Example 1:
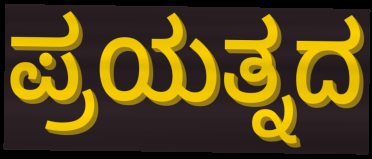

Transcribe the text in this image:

ಪ್ರಯತ್ನದ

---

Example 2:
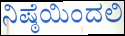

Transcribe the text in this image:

ನಿಷ್ಠೆಯಿಂದಲಿ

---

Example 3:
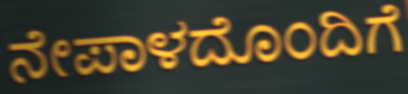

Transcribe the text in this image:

ನೇಪಾಳದೊಂದಿಗೆ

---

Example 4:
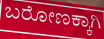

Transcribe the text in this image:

ಬರೋಣಕ್ಕಾಗಿ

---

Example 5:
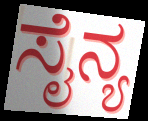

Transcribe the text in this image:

ಸೈನ್ಯ